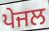
ਪੇਜਲ